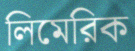
লিমেরিক